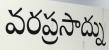
వరప్రసాద్ను